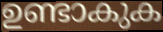
ഉണ്ടാകുക